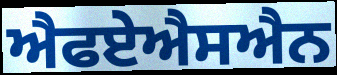
ਐਫਏਐਸਐਨ